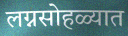
लग्नसोहळ्यात